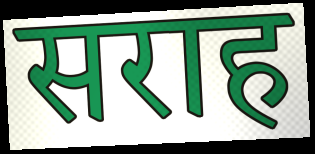
सराह